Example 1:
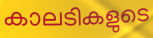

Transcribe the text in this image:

കാലടികളുടെ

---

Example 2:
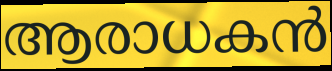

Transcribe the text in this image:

ആരാധകൻ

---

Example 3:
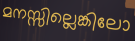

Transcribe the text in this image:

മനസ്സില്ലെങ്കിലോ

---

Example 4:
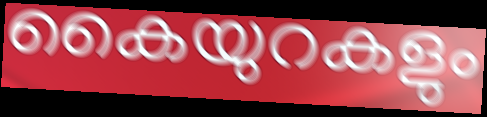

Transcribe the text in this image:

കൈയുറകളും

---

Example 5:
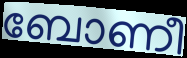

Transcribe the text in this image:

ബോണീ